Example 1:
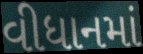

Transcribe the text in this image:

વીધાનમાં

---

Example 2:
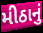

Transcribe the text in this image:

મીઠાનું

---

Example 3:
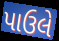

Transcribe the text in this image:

પાઉલે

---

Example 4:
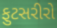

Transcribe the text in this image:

ફુટસરીરો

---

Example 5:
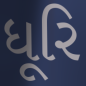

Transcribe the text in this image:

ધૂરિ